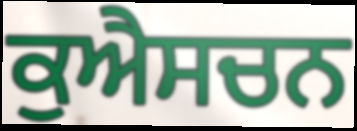
ਕੁਐਸਚਨ